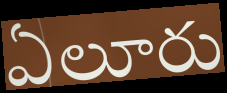
ఏలూరు